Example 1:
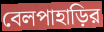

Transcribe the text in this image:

বেলপাহাড়ির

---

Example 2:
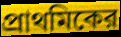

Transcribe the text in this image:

প্রাথমিকের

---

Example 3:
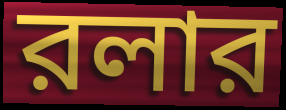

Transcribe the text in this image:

রলার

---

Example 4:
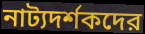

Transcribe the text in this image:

নাট্যদর্শকদের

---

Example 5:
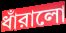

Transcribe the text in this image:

ধাঁরালো